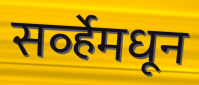
सर्व्हेमधून